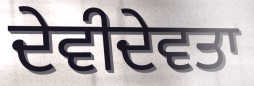
ਦੇਵੀਦੇਵਤਾ